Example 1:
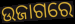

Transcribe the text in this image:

ଉଜାଗରେ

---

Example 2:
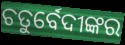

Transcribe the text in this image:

ଚତୁର୍ବେଦୀଙ୍କର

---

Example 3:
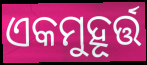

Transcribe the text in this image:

ଏକମୁହୂର୍ତ୍ତ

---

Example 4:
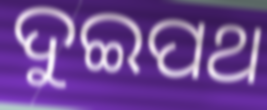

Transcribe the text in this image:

ଦୁଇପଥ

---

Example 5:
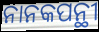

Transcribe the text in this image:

ନାନକପନ୍ଥୀ